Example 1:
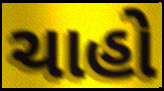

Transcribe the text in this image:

ચાહો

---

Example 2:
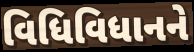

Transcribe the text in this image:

વિધિવિધાનને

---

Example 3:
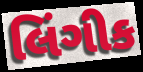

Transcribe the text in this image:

લિંગીક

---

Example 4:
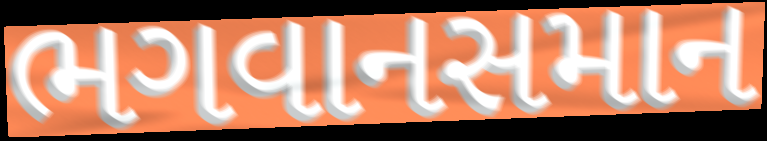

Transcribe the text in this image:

ભગવાનસમાન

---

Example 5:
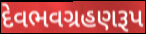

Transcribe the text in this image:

દેવભવગ્રહણરૂપ